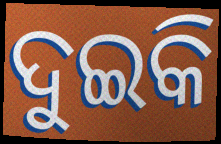
ଦୁଇକି